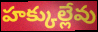
హక్కుల్లేవు